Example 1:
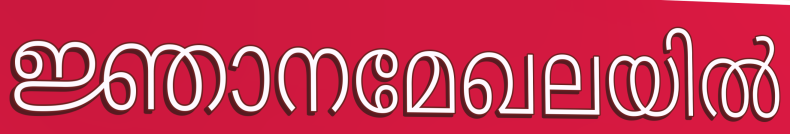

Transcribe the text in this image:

ജ്ഞാനമേഖലയിൽ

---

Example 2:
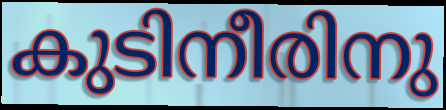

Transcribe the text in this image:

കുടിനീരിനു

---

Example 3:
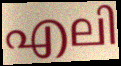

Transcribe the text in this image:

എലി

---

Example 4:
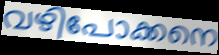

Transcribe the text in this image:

വഴിപോക്കനെ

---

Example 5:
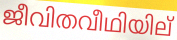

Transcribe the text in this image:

ജീവിതവീഥിയില്